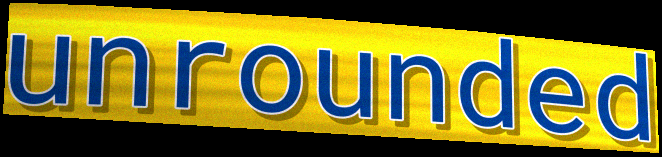
unrounded